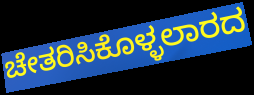
ಚೇತರಿಸಿಕೊಳ್ಳಲಾರದ